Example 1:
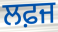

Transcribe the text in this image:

ਲਫ਼ਜ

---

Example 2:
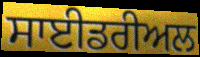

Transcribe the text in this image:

ਸਾਈਡਰੀਅਲ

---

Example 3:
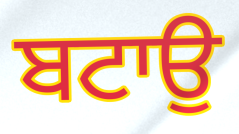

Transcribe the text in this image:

ਬਟਾਉ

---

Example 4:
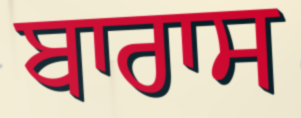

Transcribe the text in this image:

ਬਾਰਾਸ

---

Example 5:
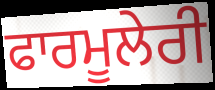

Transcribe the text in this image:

ਫਾਰਮੂਲੇਰੀ